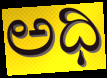
ಅಧಿ